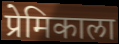
प्रेमिकाला